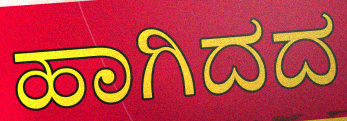
ಹಾಗಿದದ